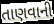
તાણવાની